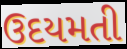
ઉદયમતી